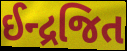
ઈન્દ્રજિત